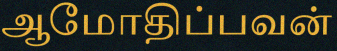
ஆமோதிப்பவன்